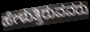
ಹೇಳುತ್ತಿರುವವರು